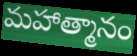
మహాత్మానం